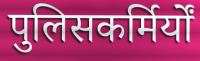
पुलिसकर्मिर्यों